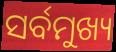
ସର୍ବମୁଖ୍ୟ